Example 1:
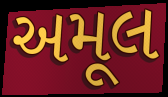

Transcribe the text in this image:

અમૂલ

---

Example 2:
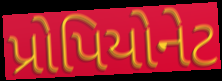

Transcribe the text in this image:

પ્રોપિયોનેટ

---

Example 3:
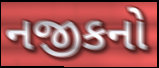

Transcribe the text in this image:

નજીકનો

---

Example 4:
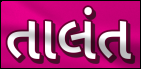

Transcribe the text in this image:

તાલંત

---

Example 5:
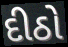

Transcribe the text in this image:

દીઠો